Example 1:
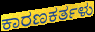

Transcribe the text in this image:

ಕಾರಣಕರ್ತಳು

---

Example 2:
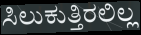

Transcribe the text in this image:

ಸಿಲುಕುತ್ತಿರಲಿಲ್ಲ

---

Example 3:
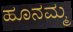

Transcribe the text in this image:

ಹೂನಮ್ಮ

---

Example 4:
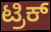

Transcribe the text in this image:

ಟ್ರಿಕ್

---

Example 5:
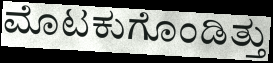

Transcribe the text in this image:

ಮೊಟಕುಗೊಂಡಿತ್ತು